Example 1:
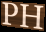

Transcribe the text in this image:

PH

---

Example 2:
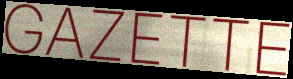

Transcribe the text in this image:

GAZETTE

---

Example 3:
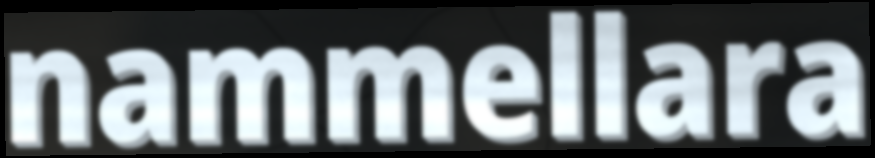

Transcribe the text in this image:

nammellara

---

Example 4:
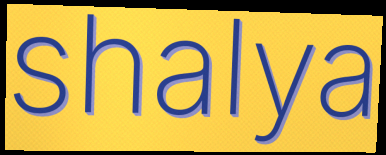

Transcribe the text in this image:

shalya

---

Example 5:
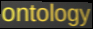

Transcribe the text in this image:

ontology